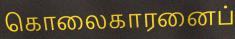
கொலைகாரனைப்